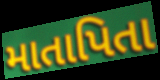
માતાપિતા